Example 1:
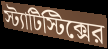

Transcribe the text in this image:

স্ট্যাটিস্টিক্সের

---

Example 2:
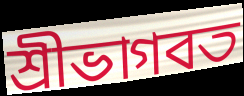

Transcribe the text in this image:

শ্রীভাগবত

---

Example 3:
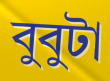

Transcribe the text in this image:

বুবুটা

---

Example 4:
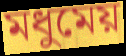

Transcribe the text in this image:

মধুমেয়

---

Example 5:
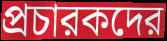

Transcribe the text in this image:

প্রচারকদের